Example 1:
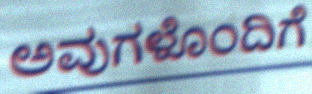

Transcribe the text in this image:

ಅವುಗಳೊಂದಿಗೆ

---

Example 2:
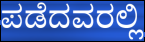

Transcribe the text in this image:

ಪಡೆದವರಲ್ಲಿ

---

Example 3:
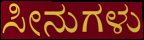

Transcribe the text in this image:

ಸೀನುಗಳು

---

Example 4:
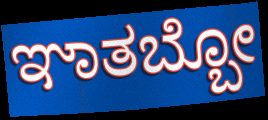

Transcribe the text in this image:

ಞಾತಬ್ಬೋ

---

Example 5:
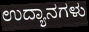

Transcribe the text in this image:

ಉದ್ಯಾನಗಳು